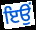
ਇਉਂ